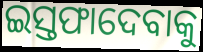
ଇସ୍ତଫାଦେବାକୁ